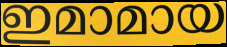
ഇമാമായ